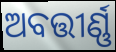
ଅବତ୍ତୀର୍ଣ୍ଣ